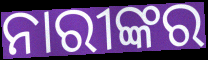
ନାରୀଙ୍କର